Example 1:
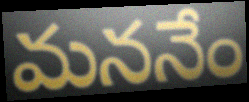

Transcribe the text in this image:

మననేం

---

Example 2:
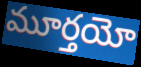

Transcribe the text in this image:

మూర్తయో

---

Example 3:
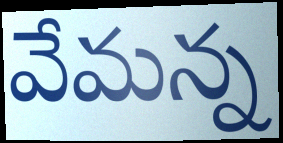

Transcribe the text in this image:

వేమన్న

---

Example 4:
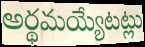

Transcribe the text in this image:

అర్థమయ్యేటట్లు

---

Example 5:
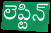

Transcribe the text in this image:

లెప్టిన్